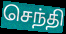
செந்தி